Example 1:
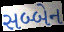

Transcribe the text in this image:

સબ્બેન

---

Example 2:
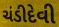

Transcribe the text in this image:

ચંડીદેવી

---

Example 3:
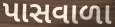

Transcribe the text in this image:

પાસવાળા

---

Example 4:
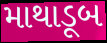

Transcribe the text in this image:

માથાડૂબ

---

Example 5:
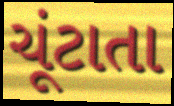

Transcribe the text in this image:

ચૂંટાતા